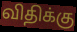
விதிக்கு